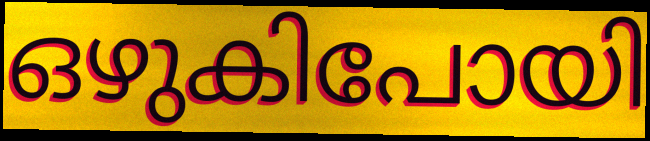
ഒഴുകിപോയി